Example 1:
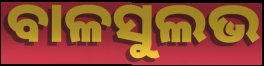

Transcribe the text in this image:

ବାଳସୁଲଭ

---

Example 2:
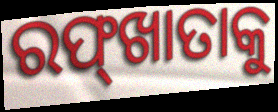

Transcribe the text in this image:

ରଫ୍‌ଖାତାକୁ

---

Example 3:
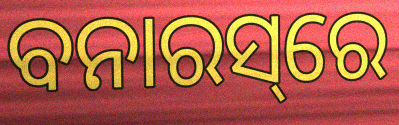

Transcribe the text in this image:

ବନାରସ୍‌ରେ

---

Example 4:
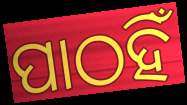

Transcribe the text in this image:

ପାଠହିଁ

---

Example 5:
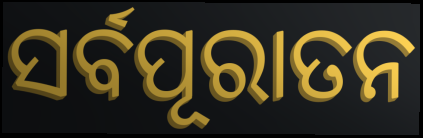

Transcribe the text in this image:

ସର୍ବପୂରାତନ